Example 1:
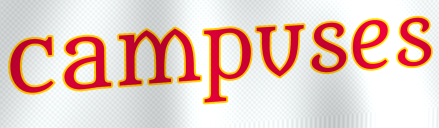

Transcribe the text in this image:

campuses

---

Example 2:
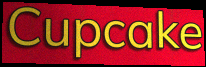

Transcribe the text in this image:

Cupcake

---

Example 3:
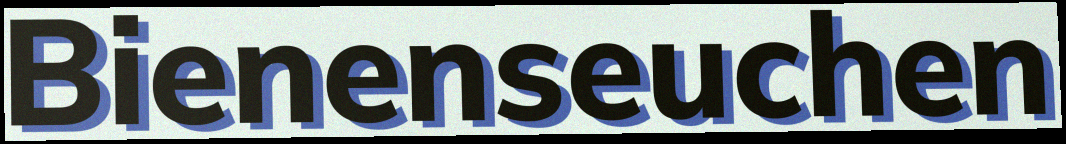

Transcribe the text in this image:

Bienenseuchen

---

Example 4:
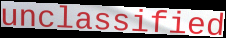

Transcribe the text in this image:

unclassified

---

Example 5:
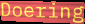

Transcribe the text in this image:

Doering